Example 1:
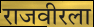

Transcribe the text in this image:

राजवीरला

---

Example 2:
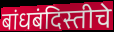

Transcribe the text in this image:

बांधबंदिस्तीचे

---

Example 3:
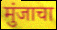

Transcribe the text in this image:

मुंजाचा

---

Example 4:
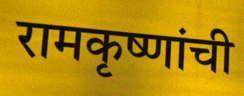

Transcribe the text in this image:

रामकृष्णांची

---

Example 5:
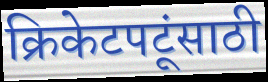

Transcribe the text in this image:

क्रिकेटपटूंसाठी